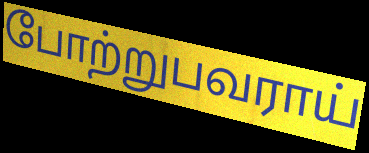
போற்றுபவராய்